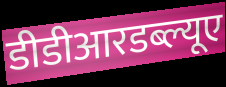
डीडीआरडब्ल्यूए